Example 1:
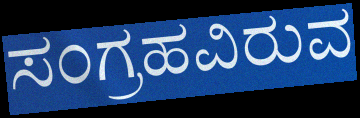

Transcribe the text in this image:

ಸಂಗ್ರಹವಿರುವ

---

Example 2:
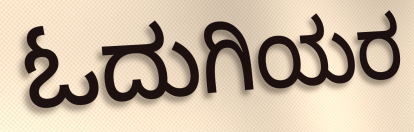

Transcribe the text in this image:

ಓದುಗಿಯರ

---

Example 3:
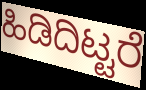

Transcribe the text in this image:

ಹಿಡಿದಿಟ್ಟರೆ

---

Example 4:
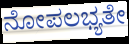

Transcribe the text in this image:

ನೋಪಲಭ್ಯತೇ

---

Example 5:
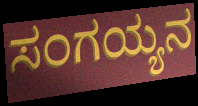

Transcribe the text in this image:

ಸಂಗಯ್ಯನ